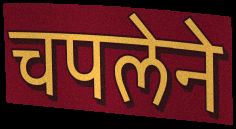
चपलेने